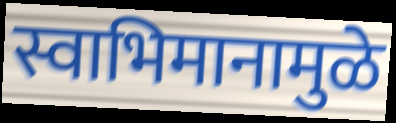
स्वाभिमानामुळे